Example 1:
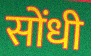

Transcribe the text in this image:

सोंधी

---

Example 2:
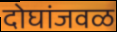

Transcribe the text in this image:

दोघांजवळ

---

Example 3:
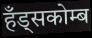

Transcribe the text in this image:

हँड्सकोम्ब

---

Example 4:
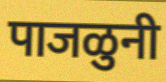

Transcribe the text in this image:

पाजळुनी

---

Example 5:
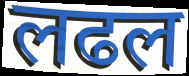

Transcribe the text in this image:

लढल